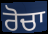
ਰੋਚਾ